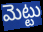
మెట్టు